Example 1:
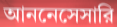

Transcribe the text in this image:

আননেসেসারি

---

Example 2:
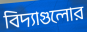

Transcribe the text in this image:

বিদ্যাগুলোর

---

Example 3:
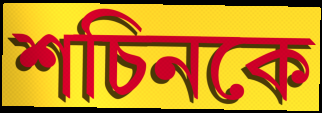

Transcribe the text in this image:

শচিনকে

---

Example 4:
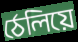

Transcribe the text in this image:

ঠেলিয়ে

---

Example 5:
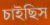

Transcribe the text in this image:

চাইছিস